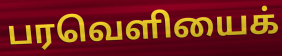
பரவெளியைக்